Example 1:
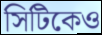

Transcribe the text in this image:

সিটিকেও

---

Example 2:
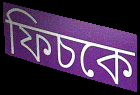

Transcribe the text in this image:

ফিচকে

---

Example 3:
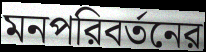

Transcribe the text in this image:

মনপরিবর্তনের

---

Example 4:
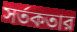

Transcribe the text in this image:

সর্তকতার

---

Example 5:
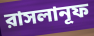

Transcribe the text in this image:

রাসলানূফ